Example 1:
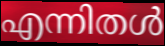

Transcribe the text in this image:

എന്നിതൾ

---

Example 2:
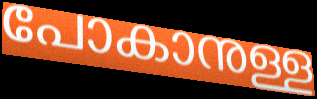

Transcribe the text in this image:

പോകാനുള്ള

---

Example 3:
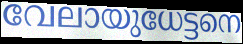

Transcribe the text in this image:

വേലായുധേട്ടനെ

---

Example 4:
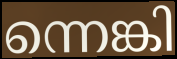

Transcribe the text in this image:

ന്നെങ്കി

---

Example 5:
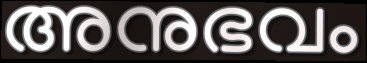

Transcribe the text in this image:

അനുഭവം